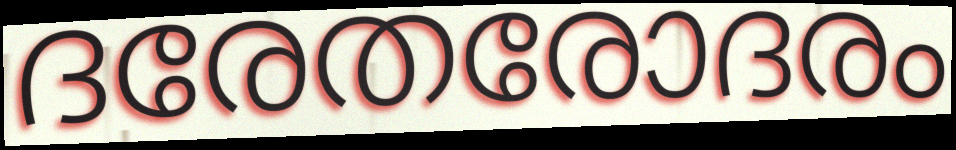
ദരേതരോദരം